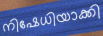
നിഷേധിയാക്കി